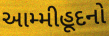
આમ્મીહૂદનો